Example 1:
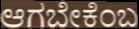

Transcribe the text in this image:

ಆಗಬೇಕೆಂಬ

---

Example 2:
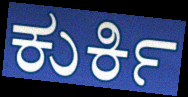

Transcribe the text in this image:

ಕುರ್ಕಿ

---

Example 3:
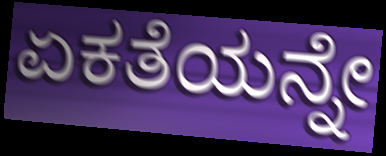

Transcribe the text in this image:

ಏಕತೆಯನ್ನೇ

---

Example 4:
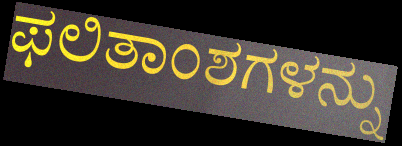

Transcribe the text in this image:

ಫಲಿತಾಂಶಗಳನ್ನು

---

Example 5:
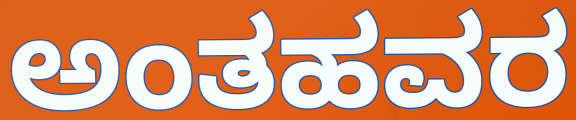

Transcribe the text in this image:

ಅಂತಹವರ